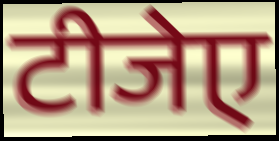
टीजेए